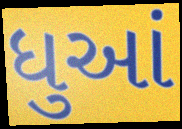
ધુઆં